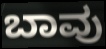
ಬಾವು